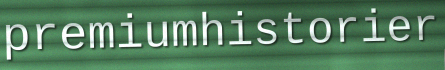
premiumhistorier